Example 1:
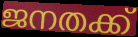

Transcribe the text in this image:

ജനതക്ക്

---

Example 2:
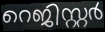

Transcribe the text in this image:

റെജിസ്റ്റർ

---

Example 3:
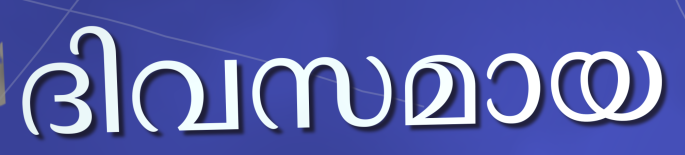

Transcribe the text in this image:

ദിവസമായ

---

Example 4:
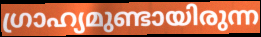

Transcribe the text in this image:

ഗ്രാഹ്യമുണ്ടായിരുന്ന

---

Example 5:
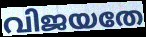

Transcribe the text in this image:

വിജയതേ